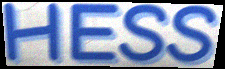
HESS